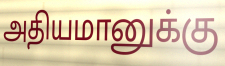
அதியமானுக்கு